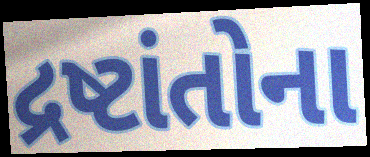
દ્રષ્ટાંતોના